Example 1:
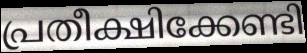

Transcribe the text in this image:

പ്രതീക്ഷിക്കേണ്ടി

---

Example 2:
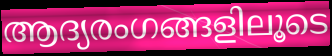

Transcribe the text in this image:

ആദ്യരംഗങ്ങളിലൂടെ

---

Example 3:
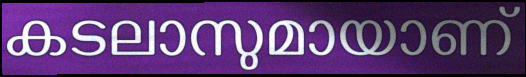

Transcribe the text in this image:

കടലാസുമായാണ്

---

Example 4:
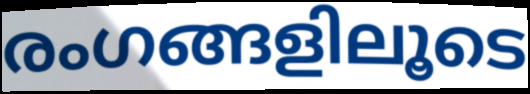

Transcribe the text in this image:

രംഗങ്ങളിലൂടെ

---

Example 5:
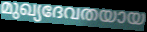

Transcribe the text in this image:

മുഖ്യദേവതയായ